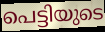
പെട്ടിയുടെ